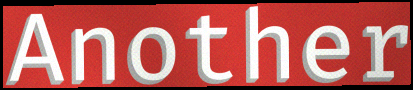
Another